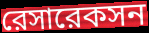
রেসারেকসন